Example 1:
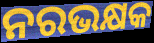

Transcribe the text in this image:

ନରଭକ୍ଷକ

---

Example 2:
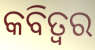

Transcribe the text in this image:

କବିତ୍ଵର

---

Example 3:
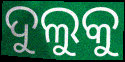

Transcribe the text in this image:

ଦୁଲୁକୁ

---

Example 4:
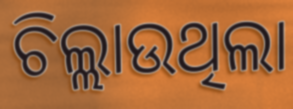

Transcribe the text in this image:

ଚିଲ୍ଲାଉଥିଲା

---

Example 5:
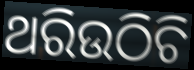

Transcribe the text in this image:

ଥରିଉଠିଚି